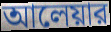
আলেয়ার